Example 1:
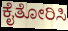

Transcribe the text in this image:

ಕೈತೋರಿಸಿ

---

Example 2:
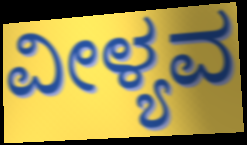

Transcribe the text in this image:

ವೀಳ್ಯವ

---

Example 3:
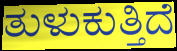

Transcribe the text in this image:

ತುಳುಕುತ್ತಿದೆ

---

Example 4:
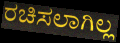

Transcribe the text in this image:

ರಚಿಸಲಾಗಿಲ್ಲ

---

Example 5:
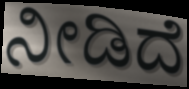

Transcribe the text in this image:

ನೀಡಿದೆ